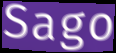
Sago